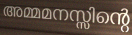
അമ്മമനസ്സിന്റെ